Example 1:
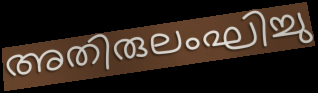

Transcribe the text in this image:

അതിരുലംഘിച്ചു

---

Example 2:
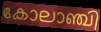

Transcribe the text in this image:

കോലാഞ്ചി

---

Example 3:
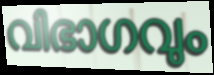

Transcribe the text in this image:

വിഭാഗവും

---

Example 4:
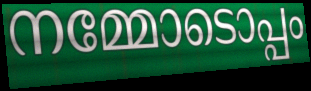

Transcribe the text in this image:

നമ്മോടൊപ്പം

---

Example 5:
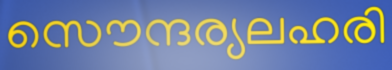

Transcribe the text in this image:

സൌന്ദര്യലഹരി